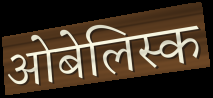
ओबेलिस्क